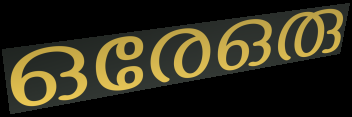
ഒരേഒരു